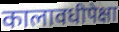
कालावधीपेक्षा